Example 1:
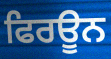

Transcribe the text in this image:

ਫਿਰਊਨ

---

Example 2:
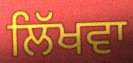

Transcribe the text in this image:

ਲਿੱਖਵਾ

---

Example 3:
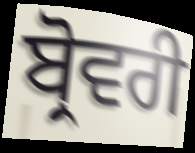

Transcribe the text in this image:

ਬ੍ਰੋਵਰੀ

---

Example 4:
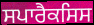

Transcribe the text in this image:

ਸਪਾਰੈਕਸਿਸ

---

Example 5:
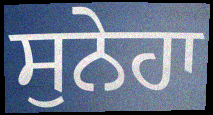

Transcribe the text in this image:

ਸੁਨੇਹਾ